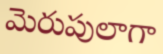
మెరుపులాగా